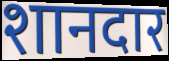
शानदार